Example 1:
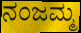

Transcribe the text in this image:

ನಂಜಮ್ಮ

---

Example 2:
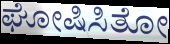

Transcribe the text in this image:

ಘೋಷಿಸಿತೋ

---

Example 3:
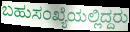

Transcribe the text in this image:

ಬಹುಸಂಖ್ಯೆಯಲ್ಲಿದ್ದರು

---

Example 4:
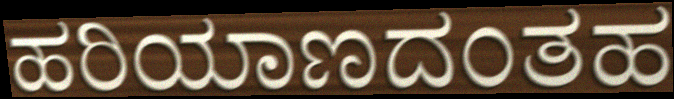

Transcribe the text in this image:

ಹರಿಯಾಣದಂತಹ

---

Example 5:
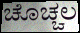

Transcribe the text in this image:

ಚೊಚ್ಚಲ